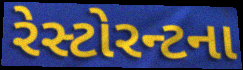
રેસ્ટોરન્ટના